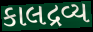
કાલદ્રવ્ય